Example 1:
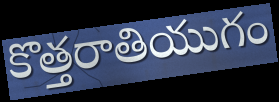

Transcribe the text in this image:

కొత్తరాతియుగం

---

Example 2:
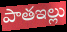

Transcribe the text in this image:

పాతఇల్లు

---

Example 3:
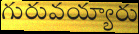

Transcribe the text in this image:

గురువయ్యారు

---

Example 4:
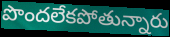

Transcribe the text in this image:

పొందలేకపోతున్నారు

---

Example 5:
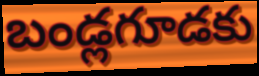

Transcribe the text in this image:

బండ్లగూడకు